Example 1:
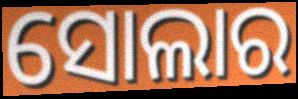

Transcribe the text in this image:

ସୋଲାର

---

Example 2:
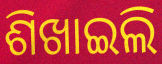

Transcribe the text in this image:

ଶିଖାଇଲି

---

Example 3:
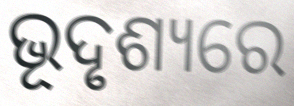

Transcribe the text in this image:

ଭୂଦୃଶ୍ୟରେ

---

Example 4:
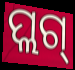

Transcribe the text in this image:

ପ୍ଲଗ୍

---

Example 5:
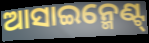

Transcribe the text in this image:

ଆସାଇନ୍ମେଣ୍ଟ୍